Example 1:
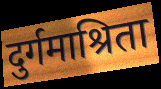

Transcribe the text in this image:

दुर्गमाश्रिता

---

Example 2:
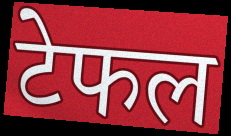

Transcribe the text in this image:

टेफल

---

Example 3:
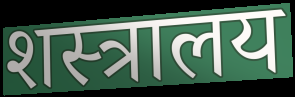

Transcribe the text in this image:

शस्त्रालय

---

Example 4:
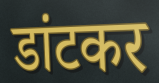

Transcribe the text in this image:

डांटकर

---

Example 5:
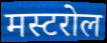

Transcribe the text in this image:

मस्टरोल